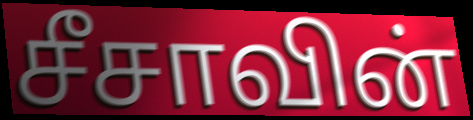
சீசாவின்